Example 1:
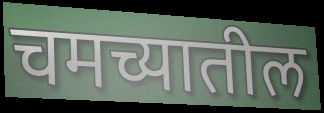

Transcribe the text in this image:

चमच्यातील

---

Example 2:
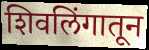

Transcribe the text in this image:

शिवलिंगातून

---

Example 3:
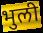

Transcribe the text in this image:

भुली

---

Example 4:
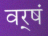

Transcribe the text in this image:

वर्षं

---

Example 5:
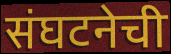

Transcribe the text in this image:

संघटनेची